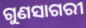
ଗୁଣସାଗରୀ